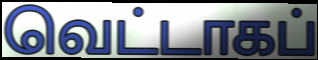
வெட்டாகப்